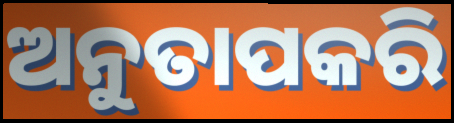
ଅନୁତାପକରି